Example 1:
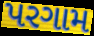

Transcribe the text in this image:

પરગામ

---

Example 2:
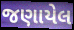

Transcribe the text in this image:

જણાયેલ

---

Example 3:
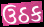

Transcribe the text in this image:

ઉઠક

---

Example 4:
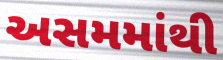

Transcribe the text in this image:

અસમમાંથી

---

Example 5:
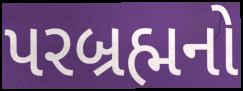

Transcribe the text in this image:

પરબ્રહ્મનો